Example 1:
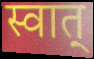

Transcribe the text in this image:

स्वात्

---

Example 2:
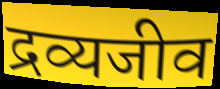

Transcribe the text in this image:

द्रव्यजीव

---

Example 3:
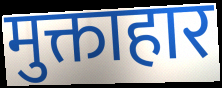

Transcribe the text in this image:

मुक्ताहार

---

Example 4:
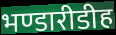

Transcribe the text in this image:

भण्डारीडीह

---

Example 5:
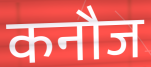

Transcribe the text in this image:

कनौज